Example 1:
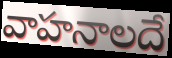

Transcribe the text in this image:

వాహనాలదే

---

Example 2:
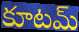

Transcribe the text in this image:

కూటమ్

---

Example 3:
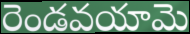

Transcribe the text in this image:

రెండవయామె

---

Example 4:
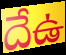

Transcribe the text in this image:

దేఉ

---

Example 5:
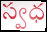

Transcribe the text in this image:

స్వధ